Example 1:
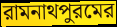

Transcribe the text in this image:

রামনাথপুরমের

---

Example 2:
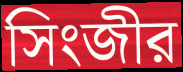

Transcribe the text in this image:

সিংজীর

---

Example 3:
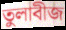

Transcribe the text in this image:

তুলাবীজ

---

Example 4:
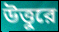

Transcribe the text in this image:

উত্তুরে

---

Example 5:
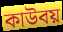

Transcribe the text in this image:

কাউবয়